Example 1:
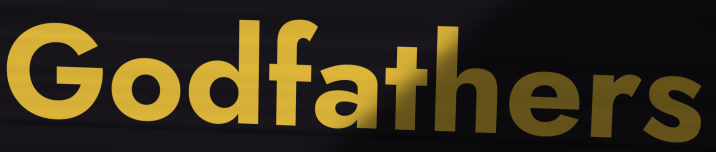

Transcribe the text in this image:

Godfathers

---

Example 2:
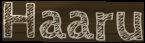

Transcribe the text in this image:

Haaru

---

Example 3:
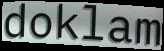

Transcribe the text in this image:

doklam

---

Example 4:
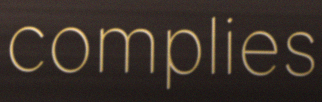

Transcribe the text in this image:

complies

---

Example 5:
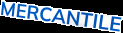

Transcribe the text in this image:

MERCANTILE